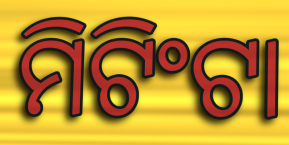
ମିଟିଂଟା